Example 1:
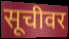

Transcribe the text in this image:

सूचीवर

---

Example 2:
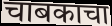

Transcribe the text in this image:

चाबकाचा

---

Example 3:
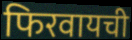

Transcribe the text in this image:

फिरवायची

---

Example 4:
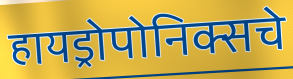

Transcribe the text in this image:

हायड्रोपोनिक्सचे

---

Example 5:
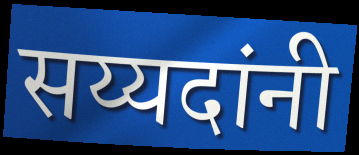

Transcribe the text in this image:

सय्यदांनी